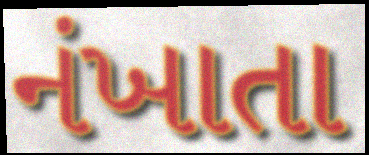
નંખાતા